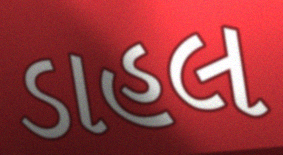
ડાહલ